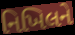
નિખિલને